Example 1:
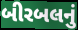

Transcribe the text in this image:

બીરબલનું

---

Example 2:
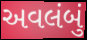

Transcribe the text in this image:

અવલંબું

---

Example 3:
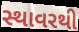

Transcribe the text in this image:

સ્થાવરથી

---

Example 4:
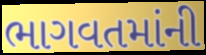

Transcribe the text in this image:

ભાગવતમાંની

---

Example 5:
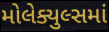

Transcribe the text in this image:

મોલેક્યુલ્સમાં